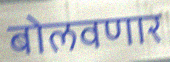
बोलवणार